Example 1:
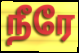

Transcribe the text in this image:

நீரே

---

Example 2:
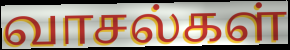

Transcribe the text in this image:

வாசல்கள்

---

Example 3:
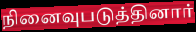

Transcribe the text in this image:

நினைவுபடுத்தினார்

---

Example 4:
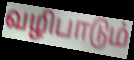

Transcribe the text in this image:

வழிபாடும்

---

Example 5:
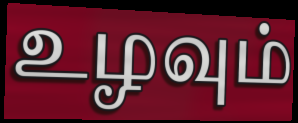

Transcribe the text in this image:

உழவும்